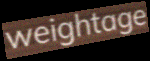
weightage